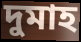
দুমাহ